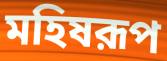
মহিষরূপ